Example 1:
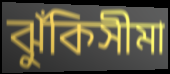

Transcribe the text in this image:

ঝুঁকিসীমা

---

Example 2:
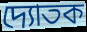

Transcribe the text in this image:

দ্যোতক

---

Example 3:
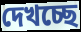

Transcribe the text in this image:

দেখচ্ছে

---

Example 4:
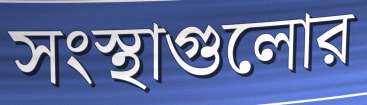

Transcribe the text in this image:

সংস্থাগুলোর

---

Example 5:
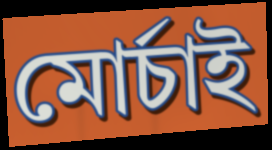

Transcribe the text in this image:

মোর্চাই